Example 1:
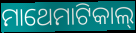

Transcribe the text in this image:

ମାଥେମାଟିକାଲ୍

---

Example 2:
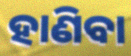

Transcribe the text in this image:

ହାଣିବା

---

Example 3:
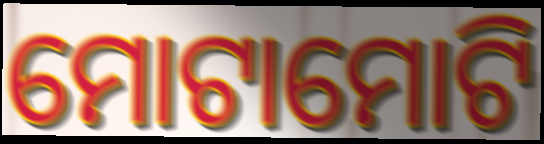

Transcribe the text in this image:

ମୋଟାମୋଟି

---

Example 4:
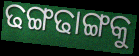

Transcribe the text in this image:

ଢଙ୍ଗଢାଙ୍ଗକୁ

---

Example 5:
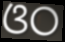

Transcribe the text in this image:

ଓଠ